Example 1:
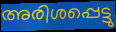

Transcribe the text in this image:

അരിശപ്പെട്ടു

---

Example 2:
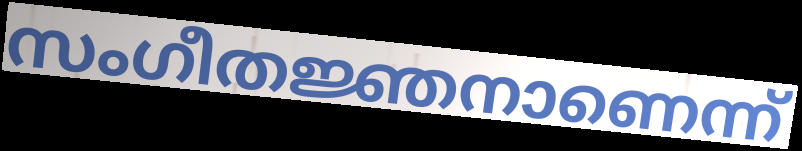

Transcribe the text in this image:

സംഗീതജ്ഞനാണെന്ന്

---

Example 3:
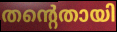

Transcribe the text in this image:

തന്റെതായി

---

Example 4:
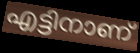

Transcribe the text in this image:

എട്ടിനാണ്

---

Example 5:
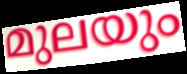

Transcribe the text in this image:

മുലയും